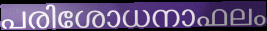
പരിശോധനാഫലം